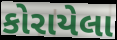
કોરાયેલા